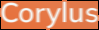
Corylus